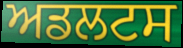
ਅਡਲਟਸ